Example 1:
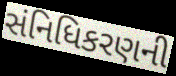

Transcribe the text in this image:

સંનિધિકરણની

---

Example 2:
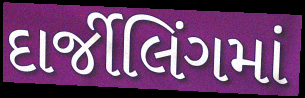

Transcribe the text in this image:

દાર્જીલિંગમાં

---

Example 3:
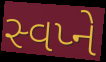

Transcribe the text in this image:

સ્વપ્ને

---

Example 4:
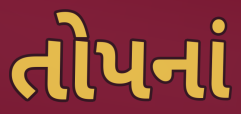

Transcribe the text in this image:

તોપનાં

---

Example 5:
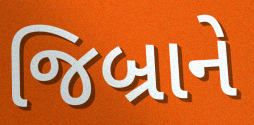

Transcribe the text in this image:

જિબ્રાને